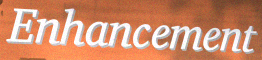
Enhancement